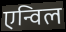
एन्विल